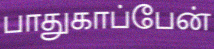
பாதுகாப்பேன்